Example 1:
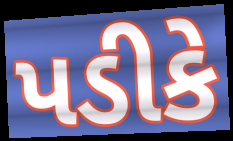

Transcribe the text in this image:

પડીકે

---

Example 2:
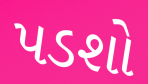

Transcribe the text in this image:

પડશો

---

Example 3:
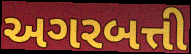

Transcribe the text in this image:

અગરબત્તી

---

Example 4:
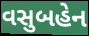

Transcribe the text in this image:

વસુબહેન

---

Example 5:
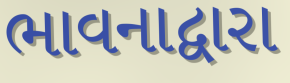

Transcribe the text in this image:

ભાવનાદ્વારા